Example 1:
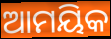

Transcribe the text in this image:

ଆମୟିକ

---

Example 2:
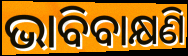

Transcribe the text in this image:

ଭାବିବାକ୍ଷଣି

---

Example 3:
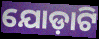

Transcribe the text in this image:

ଯୋଡ଼ାଟି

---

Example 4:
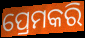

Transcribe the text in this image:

ପ୍ରେମକରି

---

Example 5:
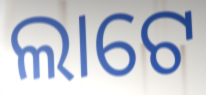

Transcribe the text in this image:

ଲାଟେ